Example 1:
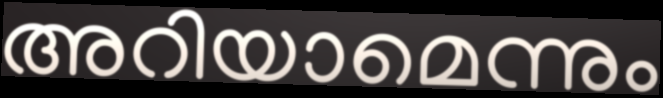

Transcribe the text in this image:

അറിയാമെന്നും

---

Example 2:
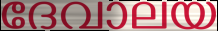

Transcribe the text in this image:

ദേവാലയ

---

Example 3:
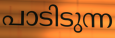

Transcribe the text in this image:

പാടിടുന്ന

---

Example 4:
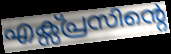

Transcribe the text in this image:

എക്സ്പ്രസിന്റെ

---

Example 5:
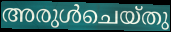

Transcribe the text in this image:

അരുൾചെയ്തു